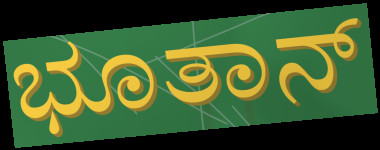
ಭೂತಾನ್